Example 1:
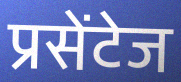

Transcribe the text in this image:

प्रसेंटेज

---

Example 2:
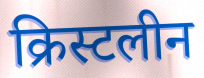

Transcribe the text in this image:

क्रिस्टलीन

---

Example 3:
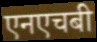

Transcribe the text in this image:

एनएचबी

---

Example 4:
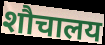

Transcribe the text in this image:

शौचालय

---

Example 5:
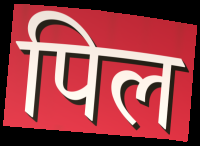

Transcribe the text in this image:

पिल